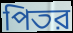
পিতর